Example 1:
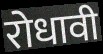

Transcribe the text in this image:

रोधावी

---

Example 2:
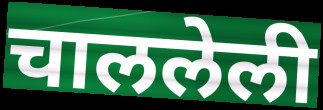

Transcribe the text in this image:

चाललेली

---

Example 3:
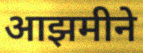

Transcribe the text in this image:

आझमीने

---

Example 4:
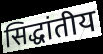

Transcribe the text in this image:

सिद्धांतीय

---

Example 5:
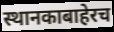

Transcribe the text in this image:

स्थानकाबाहेरच